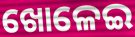
ଖୋଳେଇ